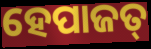
ହେପାଜତ୍